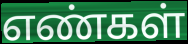
எண்கள்